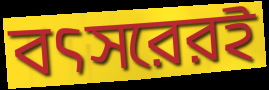
বৎসরেরই